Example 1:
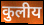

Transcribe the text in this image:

कुलीय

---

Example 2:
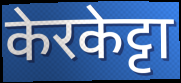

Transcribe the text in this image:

केरकेट्टा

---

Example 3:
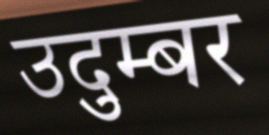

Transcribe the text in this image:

उदुम्बर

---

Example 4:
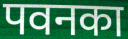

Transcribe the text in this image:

पवनका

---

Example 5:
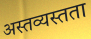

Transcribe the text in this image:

अस्तव्यस्तता